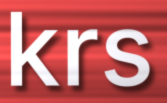
krs